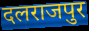
दलराजपुर